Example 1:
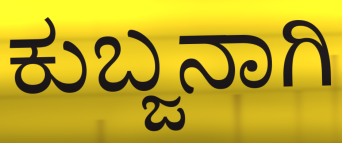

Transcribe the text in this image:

ಕುಬ್ಜನಾಗಿ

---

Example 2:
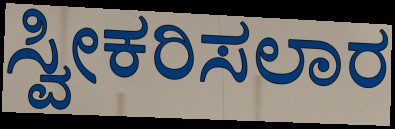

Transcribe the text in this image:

ಸ್ವೀಕರಿಸಲಾರ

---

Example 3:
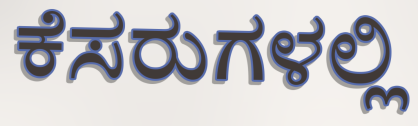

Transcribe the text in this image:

ಕೆಸರುಗಳಲ್ಲಿ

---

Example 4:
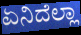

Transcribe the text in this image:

ಏನಿದೆಲ್ಲಾ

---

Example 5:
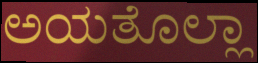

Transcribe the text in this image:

ಅಯತೊಲ್ಲಾ